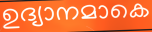
ഉദ്യാനമാകെ